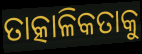
ତାତ୍କାଳିକତାକୁ